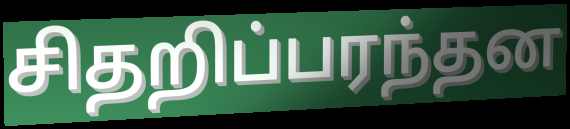
சிதறிப்பரந்தன